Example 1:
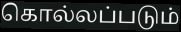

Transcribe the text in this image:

கொல்லப்படும்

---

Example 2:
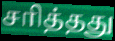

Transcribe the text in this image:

சரித்தது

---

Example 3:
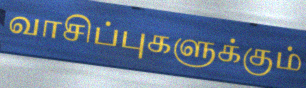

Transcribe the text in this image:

வாசிப்புகளுக்கும்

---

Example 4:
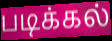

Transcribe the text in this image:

படிக்கல்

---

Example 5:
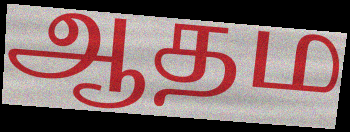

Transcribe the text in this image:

ஆதம